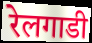
रेलगाडी